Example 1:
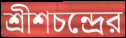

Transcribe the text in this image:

শ্রীশচন্দ্রের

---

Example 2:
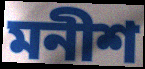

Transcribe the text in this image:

মনীশ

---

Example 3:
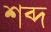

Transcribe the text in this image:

শব্দ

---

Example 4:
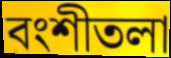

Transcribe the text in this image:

বংশীতলা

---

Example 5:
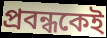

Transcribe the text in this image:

প্রবন্ধকেই